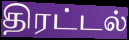
திரட்டல்